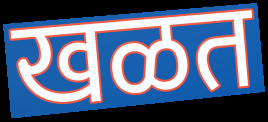
खळत